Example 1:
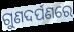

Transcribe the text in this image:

ଗୁଣଦର୍ପଣରେ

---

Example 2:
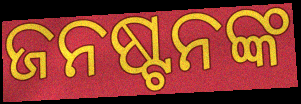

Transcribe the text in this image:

ଜନଷ୍ଟନଙ୍କ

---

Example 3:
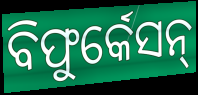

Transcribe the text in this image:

ବିଫୁର୍କେସନ୍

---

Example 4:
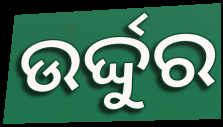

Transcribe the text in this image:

ଉର୍ଦ୍ଦୁର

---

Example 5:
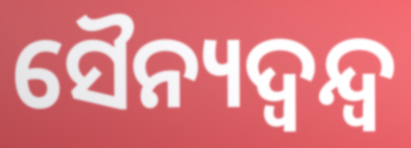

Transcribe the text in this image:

ସୈନ୍ୟଦ୍ୱନ୍ଦ୍ୱ